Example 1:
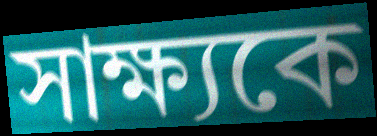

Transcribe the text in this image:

সাক্ষ্যকে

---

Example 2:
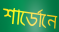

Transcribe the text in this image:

শার্ডোনে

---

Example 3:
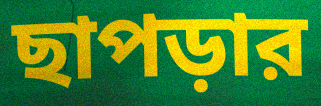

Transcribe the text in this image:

ছাপড়ার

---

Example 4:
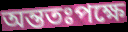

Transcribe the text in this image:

অন্ততঃপক্ষে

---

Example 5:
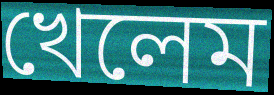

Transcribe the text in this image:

খেলেম